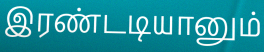
இரண்டடியானும்